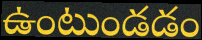
ఉంటుండడం